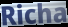
Richa